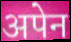
अपेन